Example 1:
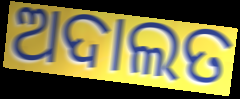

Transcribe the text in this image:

ଅଦାଲତ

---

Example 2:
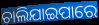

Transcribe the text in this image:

ଚାଲିଯାଇପାରେ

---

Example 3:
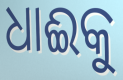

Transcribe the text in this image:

ଧାଈକୁ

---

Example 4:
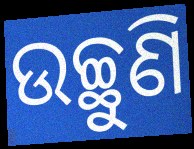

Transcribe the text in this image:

ଉଚ୍ଛୁଣି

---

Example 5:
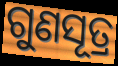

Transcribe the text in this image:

ଗୁଣସୂତ୍ର